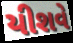
યીશવે